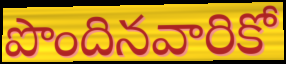
పొందినవారికో